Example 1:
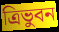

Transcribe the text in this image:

ত্রিভুবন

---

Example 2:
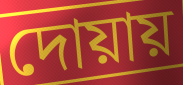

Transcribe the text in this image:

দোয়ায়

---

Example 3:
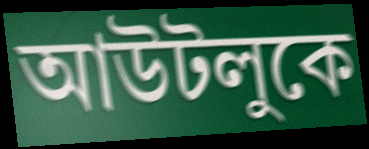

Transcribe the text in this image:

আউটলুকে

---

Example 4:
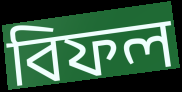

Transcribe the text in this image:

বিফল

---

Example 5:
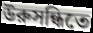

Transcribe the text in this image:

উরুসন্ধিতে